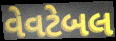
વેવટેબલ